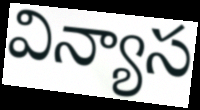
విన్యాస